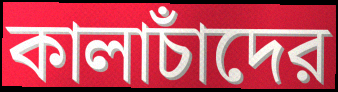
কালাচাঁদের